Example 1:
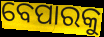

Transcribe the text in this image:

ବେପାରକୁ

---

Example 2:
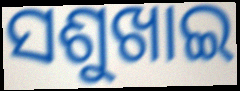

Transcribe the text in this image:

ସଶୁଖାଇ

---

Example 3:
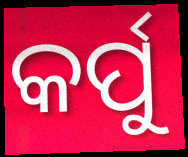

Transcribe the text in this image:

କର୍ପୁ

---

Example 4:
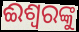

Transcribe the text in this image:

ଈଶ୍ଵରଙ୍କୁ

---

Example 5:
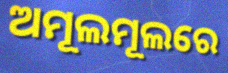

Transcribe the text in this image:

ଅମୂଲମୂଲରେ